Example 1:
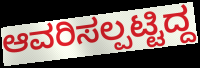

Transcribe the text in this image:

ಆವರಿಸಲ್ಪಟ್ಟಿದ್ದ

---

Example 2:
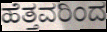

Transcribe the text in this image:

ಹೆತ್ತವರಿಂದ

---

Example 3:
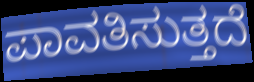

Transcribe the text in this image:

ಪಾವತಿಸುತ್ತದೆ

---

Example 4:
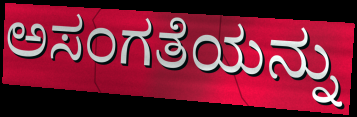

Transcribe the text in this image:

ಅಸಂಗತೆಯನ್ನು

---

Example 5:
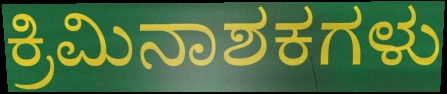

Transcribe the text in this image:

ಕ್ರಿಮಿನಾಶಕಗಳು